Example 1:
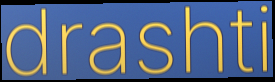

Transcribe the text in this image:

drashti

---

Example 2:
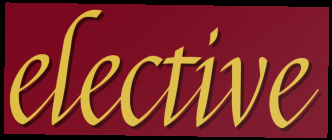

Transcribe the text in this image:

elective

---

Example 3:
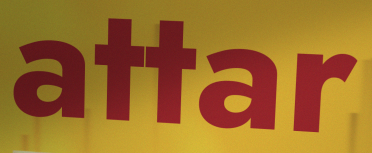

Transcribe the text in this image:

attar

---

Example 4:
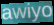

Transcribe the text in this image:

awiyo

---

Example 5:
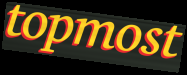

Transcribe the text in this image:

topmost